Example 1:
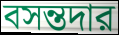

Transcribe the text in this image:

বসন্তদার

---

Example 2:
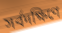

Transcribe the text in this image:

সর্বদক্ষিণে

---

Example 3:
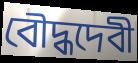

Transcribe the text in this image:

বৌদ্ধদেবী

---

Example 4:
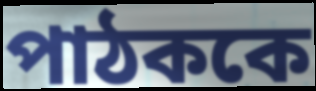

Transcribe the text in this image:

পাঠককে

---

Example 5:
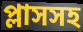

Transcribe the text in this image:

প্লাসসহ